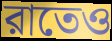
রাতেও